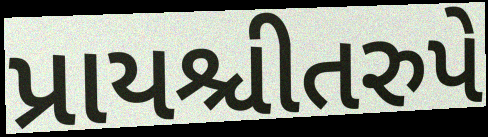
પ્રાયશ્ચીતરુપે